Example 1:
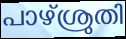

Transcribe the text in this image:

പാഴ്ശ്രുതി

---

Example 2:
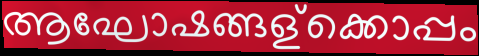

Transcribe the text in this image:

ആഘോഷങ്ങള്ക്കൊപ്പം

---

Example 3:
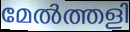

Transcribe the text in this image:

മേൽത്തളി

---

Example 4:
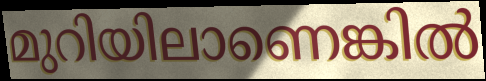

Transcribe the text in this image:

മുറിയിലാണെങ്കിൽ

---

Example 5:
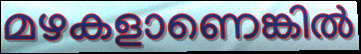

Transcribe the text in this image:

മഴകളാണെങ്കിൽ